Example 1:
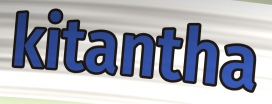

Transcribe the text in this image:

kitantha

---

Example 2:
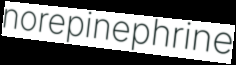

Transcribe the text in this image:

norepinephrine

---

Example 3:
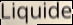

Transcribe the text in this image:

Liquide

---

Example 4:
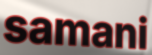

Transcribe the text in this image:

samani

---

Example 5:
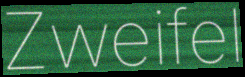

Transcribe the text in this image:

Zweifel